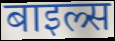
बाइल्स